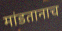
मांडतानाच